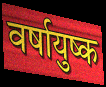
वर्षायुष्क